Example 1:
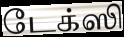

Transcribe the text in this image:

டேக்ஸி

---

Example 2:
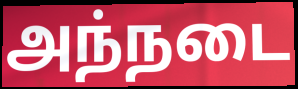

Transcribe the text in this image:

அந்நடை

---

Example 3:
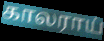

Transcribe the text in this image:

காலராய்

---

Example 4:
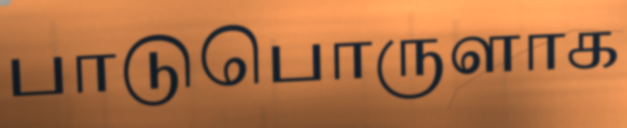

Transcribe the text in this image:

பாடுபொருளாக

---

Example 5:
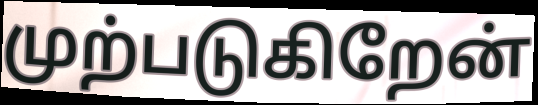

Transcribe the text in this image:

முற்படுகிறேன்